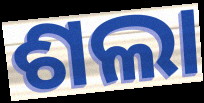
ଶଲା